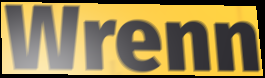
Wrenn